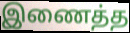
இணைத்த